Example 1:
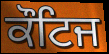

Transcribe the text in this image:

ਕੌਟਿਜ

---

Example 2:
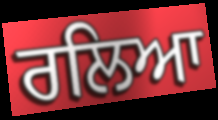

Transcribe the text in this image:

ਰਲਿਆ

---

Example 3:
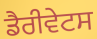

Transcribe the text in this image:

ਡੈਰੀਵੇਟਸ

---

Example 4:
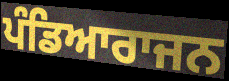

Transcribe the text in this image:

ਪੰਡਿਆਰਾਜਨ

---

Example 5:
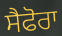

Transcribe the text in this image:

ਸੈਫੋਰਾ